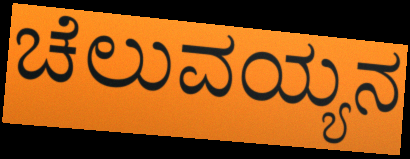
ಚೆಲುವಯ್ಯನ